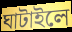
ঘাটাইলে